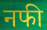
नफी